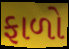
ફાળો